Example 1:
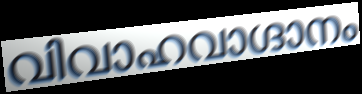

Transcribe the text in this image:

വിവാഹവാഗ്ദാനം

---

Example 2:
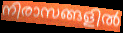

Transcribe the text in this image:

നിരാസങ്ങളിൽ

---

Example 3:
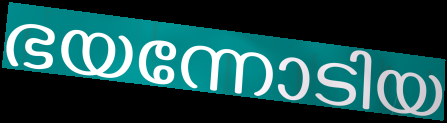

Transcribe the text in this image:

ഭയന്നോടിയ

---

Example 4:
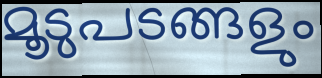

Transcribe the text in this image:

മൂടുപടങ്ങളും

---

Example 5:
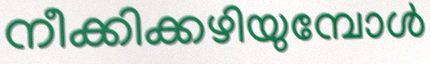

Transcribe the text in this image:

നീക്കിക്കഴിയുമ്പോൾ